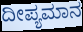
ದೀಪ್ಯಮಾನ